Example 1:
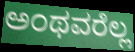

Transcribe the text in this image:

ಅಂಥವರೆಲ್ಲ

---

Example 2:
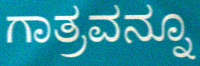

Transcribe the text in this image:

ಗಾತ್ರವನ್ನೂ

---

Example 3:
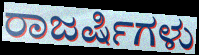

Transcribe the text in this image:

ರಾಜರ್ಷಿಗಳು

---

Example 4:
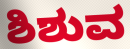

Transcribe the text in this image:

ಶಿಶುವ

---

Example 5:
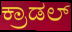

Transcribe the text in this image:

ಕ್ರಾಡಲ್